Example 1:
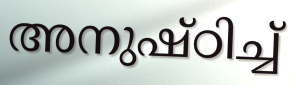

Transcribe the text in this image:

അനുഷ്ഠിച്ച്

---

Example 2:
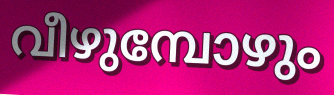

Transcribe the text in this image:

വീഴുമ്പോഴും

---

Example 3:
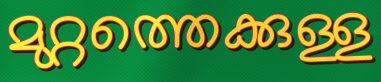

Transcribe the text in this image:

മുറ്റത്തെക്കുള്ള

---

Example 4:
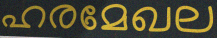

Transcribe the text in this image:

ഹരമേഖല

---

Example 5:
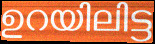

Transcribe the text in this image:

ഉറയിലിട്ട